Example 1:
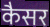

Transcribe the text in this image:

कैसर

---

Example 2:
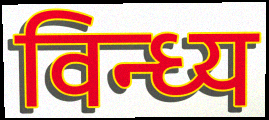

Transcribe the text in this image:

विन्ध्य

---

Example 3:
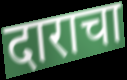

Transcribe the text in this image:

दाराचा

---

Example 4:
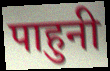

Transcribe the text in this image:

पाहुनी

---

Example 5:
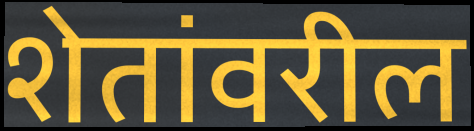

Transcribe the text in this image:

शेतांवरील